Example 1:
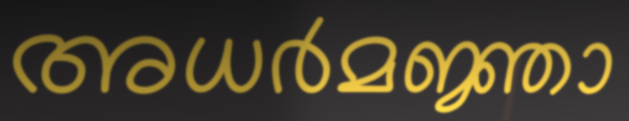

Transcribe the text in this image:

അധർമജ്ഞാ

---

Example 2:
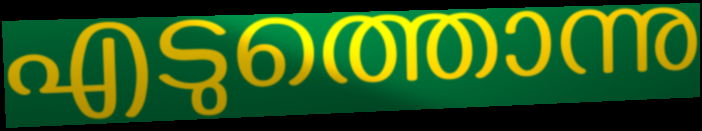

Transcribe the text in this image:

എടുത്തൊന്നു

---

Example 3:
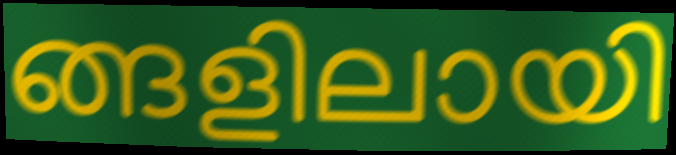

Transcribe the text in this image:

ങ്ങളിലായി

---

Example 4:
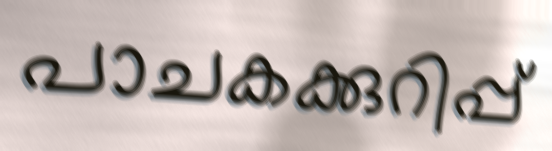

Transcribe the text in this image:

പാചകക്കുറിപ്പ്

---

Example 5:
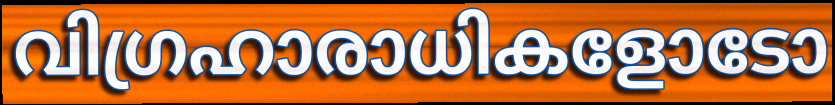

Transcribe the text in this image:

വിഗ്രഹാരാധികളോടോ